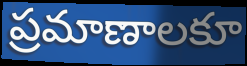
ప్రమాణాలకూ